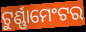
ଟୁର୍ଣ୍ଣାମେଂଟର